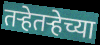
तर्‍हेतर्‍हेच्या